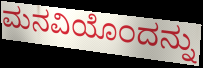
ಮನವಿಯೊಂದನ್ನು